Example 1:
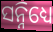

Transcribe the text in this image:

ସନ୍ନିଧ୍ୟେ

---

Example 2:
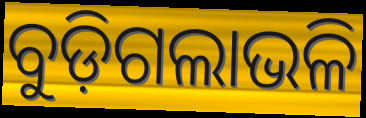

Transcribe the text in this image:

ବୁଡ଼ିଗଲାଭଳି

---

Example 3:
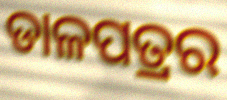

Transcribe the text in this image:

ଡାଳପତ୍ରର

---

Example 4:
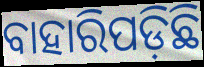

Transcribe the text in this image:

ବାହାରିପଡ଼ିଛି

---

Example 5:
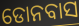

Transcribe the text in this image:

ଡୋନବାସ